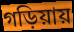
গড়িয়ায়